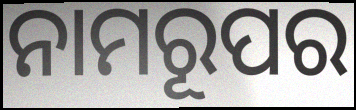
ନାମରୂପର